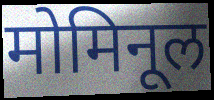
मोमिनूल